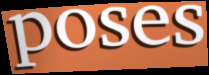
poses